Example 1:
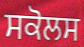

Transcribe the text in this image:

ਸਕੋਲਸ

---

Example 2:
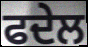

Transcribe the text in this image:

ਫਦੇਲ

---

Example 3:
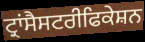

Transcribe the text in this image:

ਟ੍ਰਾਂਸੈਸਟਰੀਫਿਕੇਸ਼ਨ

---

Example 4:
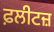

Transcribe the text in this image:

ਫ਼ਲੀਟਜ਼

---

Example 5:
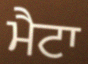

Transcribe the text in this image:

ਮੈਟਾ